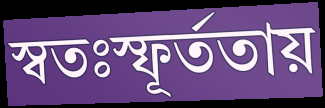
স্বতঃস্ফূর্ততায়